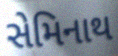
સેમિનાથ